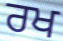
ਰਖ